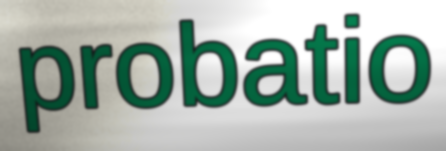
probatio